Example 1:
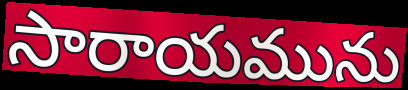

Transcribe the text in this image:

సారాయమును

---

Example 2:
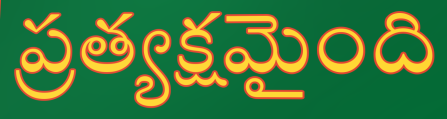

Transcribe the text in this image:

ప్రత్యక్షమైంది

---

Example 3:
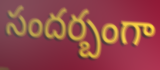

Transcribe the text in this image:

సందర్బంగా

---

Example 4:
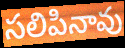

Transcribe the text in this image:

సలిపినావు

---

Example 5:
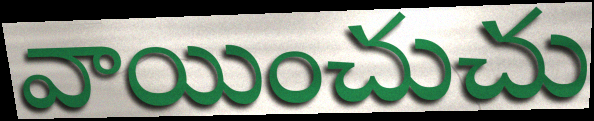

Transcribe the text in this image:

వాయించుచు